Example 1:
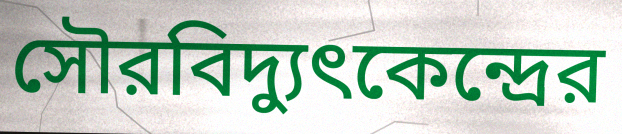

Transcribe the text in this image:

সৌরবিদ্যুৎকেন্দ্রের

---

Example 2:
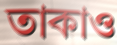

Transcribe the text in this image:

তাকাও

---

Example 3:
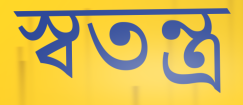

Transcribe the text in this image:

স্বতন্ত্র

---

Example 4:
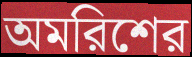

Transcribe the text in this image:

অমরিশের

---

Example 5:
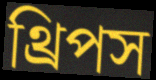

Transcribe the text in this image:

থ্রিপস